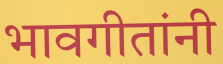
भावगीतांनी